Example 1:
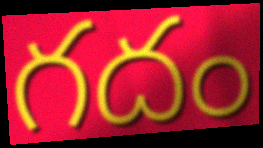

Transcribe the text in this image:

గదం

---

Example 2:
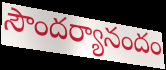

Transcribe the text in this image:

సౌందర్యానందం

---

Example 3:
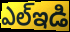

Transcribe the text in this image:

ఎల్ఇడి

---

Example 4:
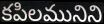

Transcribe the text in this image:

కపిలమునిని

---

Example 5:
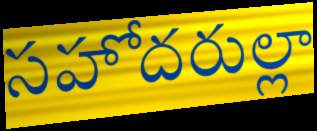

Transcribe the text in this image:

సహోదరుల్లా